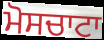
ਮੋਸਚਾਟਾ